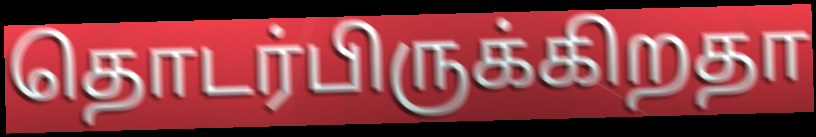
தொடர்பிருக்கிறதா